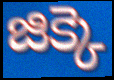
జిక్కె